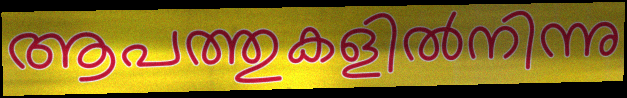
ആപത്തുകളിൽനിന്നു